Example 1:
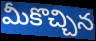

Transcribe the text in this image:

మీకొచ్చిన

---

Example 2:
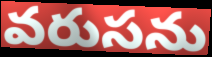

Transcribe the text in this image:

వరుసను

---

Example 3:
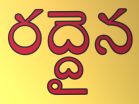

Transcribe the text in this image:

రద్దైన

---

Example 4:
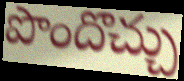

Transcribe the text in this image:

పొందొచ్చు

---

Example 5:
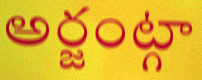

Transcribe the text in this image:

అర్జంట్గా